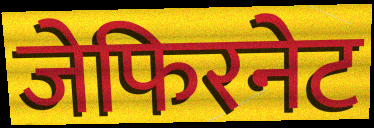
जेफिरनेट